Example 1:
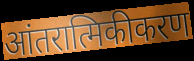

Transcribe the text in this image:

आंतरात्मिकीकरण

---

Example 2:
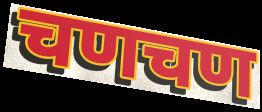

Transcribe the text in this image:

चणचण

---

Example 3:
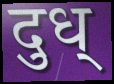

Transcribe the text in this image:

दुध्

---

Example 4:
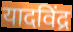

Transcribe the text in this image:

यादविंद्र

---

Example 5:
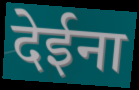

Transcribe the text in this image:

देईना